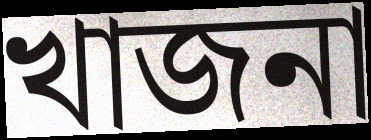
খাজনা